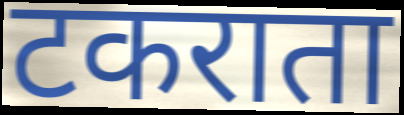
टकराता